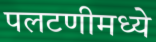
पलटणीमध्ये